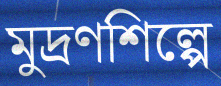
মুদ্রণশিল্পে